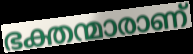
ഭക്തന്മാരാണ്